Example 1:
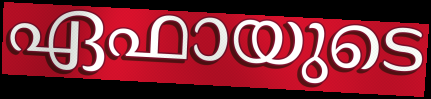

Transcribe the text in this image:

ഏഫായുടെ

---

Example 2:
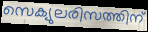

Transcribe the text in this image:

സെക്യുലരിസത്തിന്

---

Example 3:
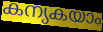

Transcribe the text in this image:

കന്യകയാം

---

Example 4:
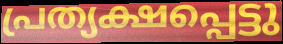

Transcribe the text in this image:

പ്രത്യക്ഷപ്പെട്ടു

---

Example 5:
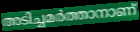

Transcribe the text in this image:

അടിച്ചമർത്താനാണ്